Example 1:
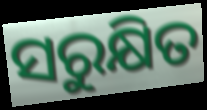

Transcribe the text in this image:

ସରୁକ୍ଷିତ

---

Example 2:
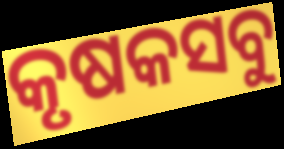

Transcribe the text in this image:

କୃଷକସବୁ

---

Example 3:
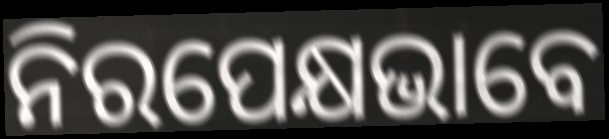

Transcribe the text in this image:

ନିରପେକ୍ଷଭାବେ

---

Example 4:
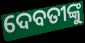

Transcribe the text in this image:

ଦେବତୀଙ୍କୁ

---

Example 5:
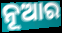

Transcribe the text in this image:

ନୂଆର